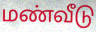
மண்வீடு